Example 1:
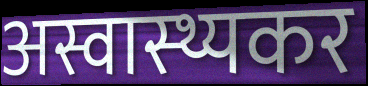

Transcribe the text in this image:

अस्वास्थ्यकर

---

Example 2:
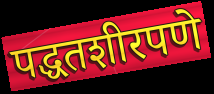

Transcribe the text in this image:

पद्धतशीरपणे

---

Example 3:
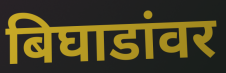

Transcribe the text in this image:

बिघाडांवर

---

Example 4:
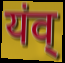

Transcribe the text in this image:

यंव्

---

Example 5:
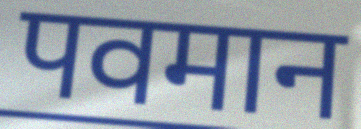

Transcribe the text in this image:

पवमान